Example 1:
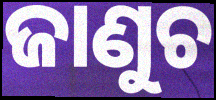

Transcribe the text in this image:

ଜାଣୁଚ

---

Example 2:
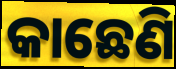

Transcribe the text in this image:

କାଛେଣି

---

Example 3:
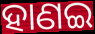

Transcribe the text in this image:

ହାଣଇ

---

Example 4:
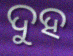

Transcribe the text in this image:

ଦୁହ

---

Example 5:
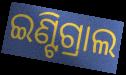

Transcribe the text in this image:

ଇଣ୍ଟିଗ୍ରାଲ